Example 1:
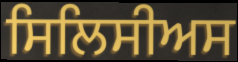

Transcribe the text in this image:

ਸਿਲਿਸੀਅਸ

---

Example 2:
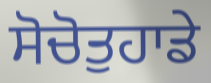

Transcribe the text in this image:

ਸੋਚੋਤੁਹਾਡੇ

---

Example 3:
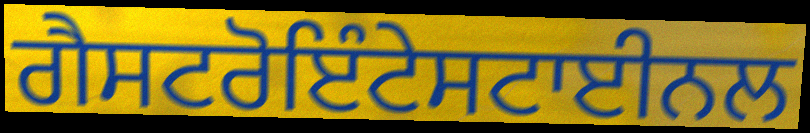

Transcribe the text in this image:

ਗੈਸਟਰੋਇੰਟੇਸਟਾਈਨਲ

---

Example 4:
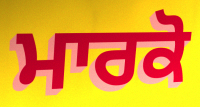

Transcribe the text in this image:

ਮਾਰਕੋ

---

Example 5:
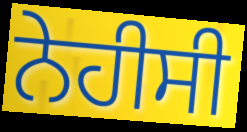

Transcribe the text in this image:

ਨੇਹੀਸੀ